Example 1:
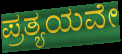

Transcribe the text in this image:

ಪ್ರತ್ಯಯವೇ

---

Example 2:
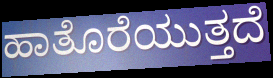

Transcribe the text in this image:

ಹಾತೊರೆಯುತ್ತದೆ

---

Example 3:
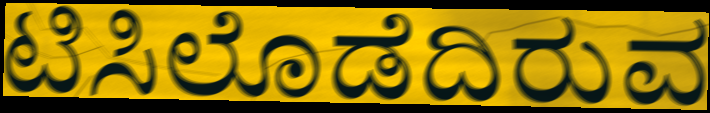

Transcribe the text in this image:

ಟಿಸಿಲೊಡೆದಿರುವ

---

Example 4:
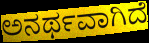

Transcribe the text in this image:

ಅನರ್ಥವಾಗಿದೆ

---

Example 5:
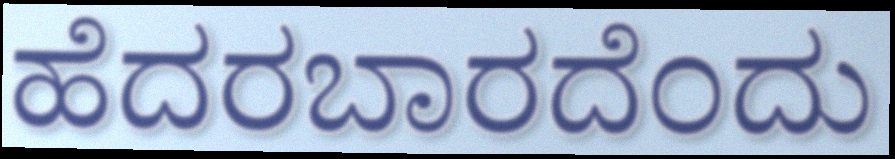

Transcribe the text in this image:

ಹೆದರಬಾರದೆಂದು